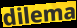
dilema